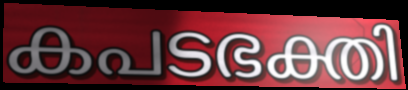
കപടഭക്തി